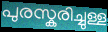
പുരസ്കരിച്ചുള്ള